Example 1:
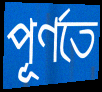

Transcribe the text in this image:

পূর্ণতে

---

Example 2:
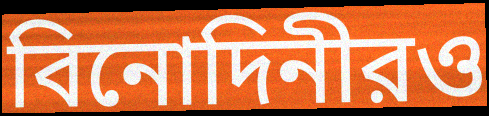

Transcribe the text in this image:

বিনোদিনীরও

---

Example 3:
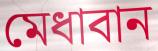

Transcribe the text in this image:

মেধাবান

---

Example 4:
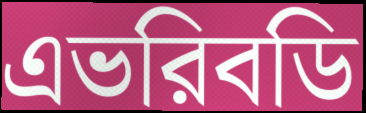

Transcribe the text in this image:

এভরিবডি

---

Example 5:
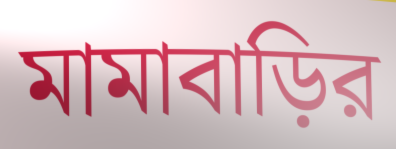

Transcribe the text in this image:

মামাবাড়ির